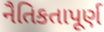
નૈતિકતાપૂર્ણ